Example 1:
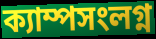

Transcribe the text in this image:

ক্যাম্পসংলগ্ন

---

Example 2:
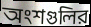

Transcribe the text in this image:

অংশগুলির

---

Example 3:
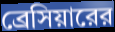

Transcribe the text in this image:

ব্রেসিয়ারের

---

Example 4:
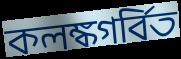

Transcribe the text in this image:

কলঙ্কগর্বিত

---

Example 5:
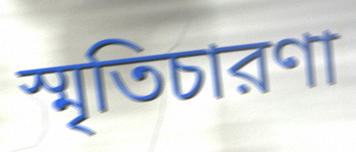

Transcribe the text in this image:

স্মৃতিচারণা